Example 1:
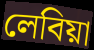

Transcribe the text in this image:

লেবিয়া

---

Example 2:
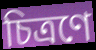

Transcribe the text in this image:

চিত্ৰণে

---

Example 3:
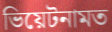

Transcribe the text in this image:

ভিয়েটনামত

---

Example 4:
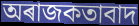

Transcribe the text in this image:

অৰাজকতাবাদ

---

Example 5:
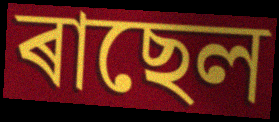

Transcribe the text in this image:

ৰাছেল